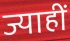
ज्याहीं